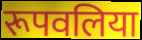
रूपवलिया